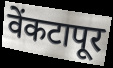
वेंकटापूर